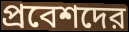
প্রবেশদের